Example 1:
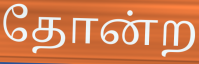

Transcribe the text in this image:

தோன்ற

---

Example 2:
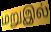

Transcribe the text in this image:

மறுஇல்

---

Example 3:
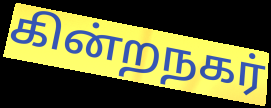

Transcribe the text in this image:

கின்றநகர்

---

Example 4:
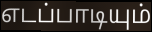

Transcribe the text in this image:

எடப்பாடியும்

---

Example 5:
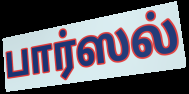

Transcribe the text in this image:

பார்ஸல்